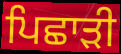
ਪਿਛਾੜੀ